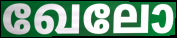
ഖേലോ